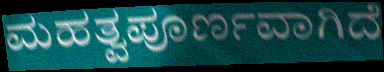
ಮಹತ್ವಪೂರ್ಣವಾಗಿದೆ